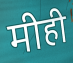
मीही